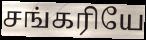
சங்கரியே